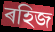
ৰহিজ